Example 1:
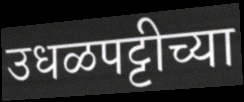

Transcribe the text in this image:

उधळपट्टीच्या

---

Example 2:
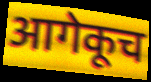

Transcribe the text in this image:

आगेकूच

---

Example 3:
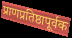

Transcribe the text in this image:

प्राणप्रतिष्ठापूर्वक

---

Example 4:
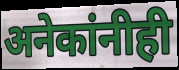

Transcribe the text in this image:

अनेकांनीही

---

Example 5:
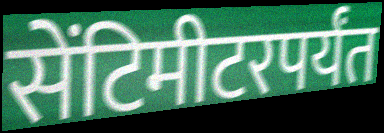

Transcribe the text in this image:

सेंटिमीटरपर्यंत